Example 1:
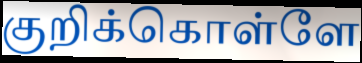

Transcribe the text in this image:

குறிக்கொள்ளே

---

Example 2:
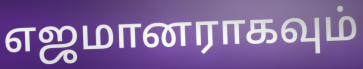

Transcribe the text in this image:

எஜமானராகவும்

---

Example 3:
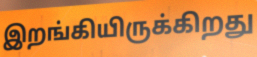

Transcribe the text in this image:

இறங்கியிருக்கிறது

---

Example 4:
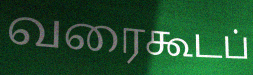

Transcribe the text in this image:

வரைகூடப்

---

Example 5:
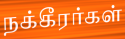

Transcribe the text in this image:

நக்கீரர்கள்